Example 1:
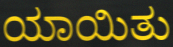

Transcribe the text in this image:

ಯಾಯಿತು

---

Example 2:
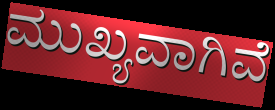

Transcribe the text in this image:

ಮುಖ್ಯವಾಗಿವೆ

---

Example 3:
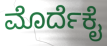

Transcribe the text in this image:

ಮೊರ್ದೆಕೈ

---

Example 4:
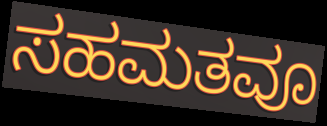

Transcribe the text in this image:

ಸಹಮತವೂ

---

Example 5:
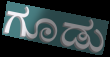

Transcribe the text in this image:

ಗೂಡು